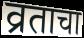
व्रताचा